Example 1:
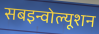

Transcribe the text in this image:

सबइन्वोल्यूशन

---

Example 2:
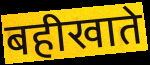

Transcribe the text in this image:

बहीखाते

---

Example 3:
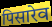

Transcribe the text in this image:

पिसारेव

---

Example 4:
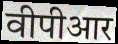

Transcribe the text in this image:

वीपीआर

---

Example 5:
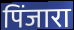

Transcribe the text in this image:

पिंजारा